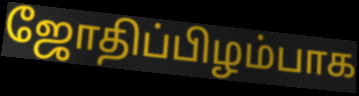
ஜோதிப்பிழம்பாக